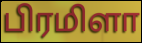
பிரமிளா